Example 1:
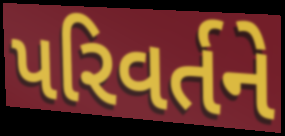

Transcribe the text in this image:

પરિવર્તને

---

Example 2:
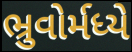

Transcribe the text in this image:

ભ્રુવોર્મધ્યે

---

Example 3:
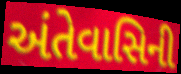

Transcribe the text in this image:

અંતેવાસિની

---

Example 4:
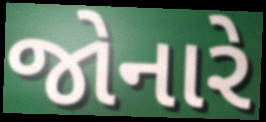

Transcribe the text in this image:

જોનારે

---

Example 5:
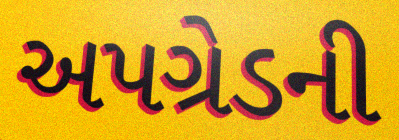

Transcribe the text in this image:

અપગ્રેડની